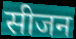
सीजन